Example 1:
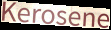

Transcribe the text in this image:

Kerosene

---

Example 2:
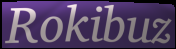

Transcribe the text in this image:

Rokibuz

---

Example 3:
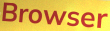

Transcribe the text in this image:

Browser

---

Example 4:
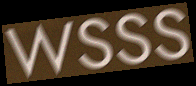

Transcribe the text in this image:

WSSS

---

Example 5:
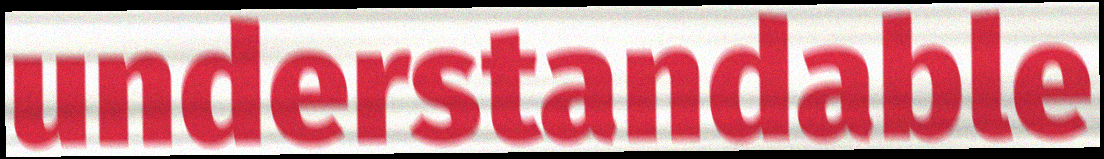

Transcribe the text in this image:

understandable